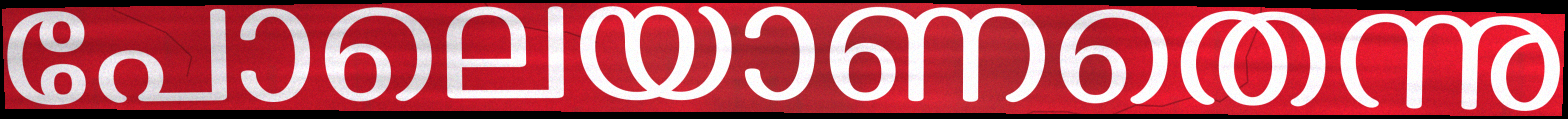
പോലെയാണതെന്നു